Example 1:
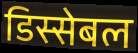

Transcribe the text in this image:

डिस्सेबल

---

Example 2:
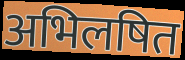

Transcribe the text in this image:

अभिलषित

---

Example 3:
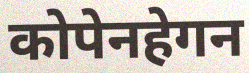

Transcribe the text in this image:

कोपेनहेगन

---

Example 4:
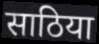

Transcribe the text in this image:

साठिया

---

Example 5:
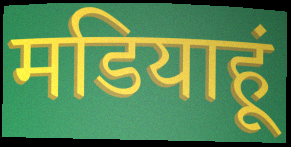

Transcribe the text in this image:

मडियाहूं